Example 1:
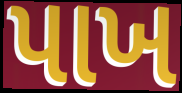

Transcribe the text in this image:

પાખ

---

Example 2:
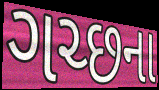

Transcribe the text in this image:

ગચ્છના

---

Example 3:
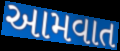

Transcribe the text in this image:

આમવાત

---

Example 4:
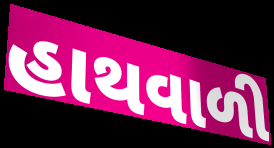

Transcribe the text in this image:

હાથવાળી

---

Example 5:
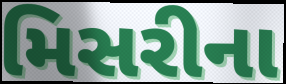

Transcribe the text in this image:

મિસરીના